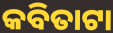
କବିତାଟା